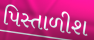
પિસ્તાળીશ